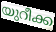
യുറീക്ക